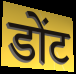
डोंट